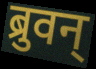
ब्रुवन्